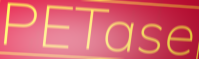
PETase